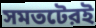
সমতটেরই